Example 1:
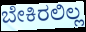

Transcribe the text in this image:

ಬೇಕಿರಲಿಲ್ಲ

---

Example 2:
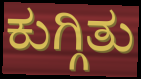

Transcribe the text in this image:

ಕುಗ್ಗಿತು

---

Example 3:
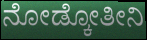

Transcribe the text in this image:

ನೋಡ್ಕೋತೀನಿ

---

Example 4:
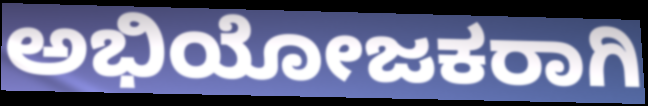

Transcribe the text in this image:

ಅಭಿಯೋಜಕರಾಗಿ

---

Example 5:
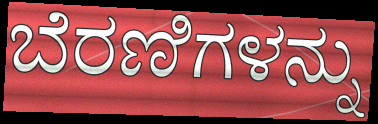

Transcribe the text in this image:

ಬೆರಣಿಗಳನ್ನು